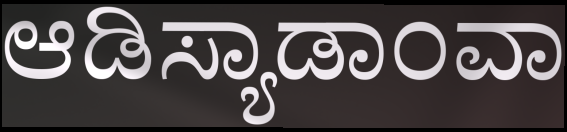
ಆಡಿಸ್ಯಾಡಾಂವಾ